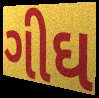
ગીઘ